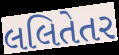
લલિતેતર